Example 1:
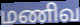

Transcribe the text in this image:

மணிவ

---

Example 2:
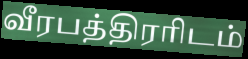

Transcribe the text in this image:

வீரபத்திரரிடம்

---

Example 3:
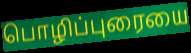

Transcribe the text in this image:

பொழிப்புரையை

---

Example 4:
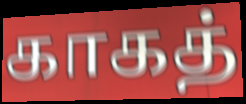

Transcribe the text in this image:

காகத்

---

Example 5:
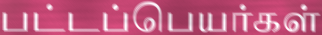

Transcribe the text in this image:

பட்டப்பெயர்கள்